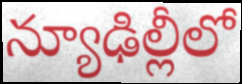
న్యూఢిల్లీలో